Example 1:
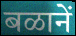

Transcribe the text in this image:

बळानें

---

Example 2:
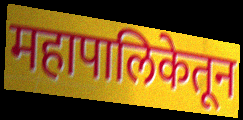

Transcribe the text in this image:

महापालिकेतून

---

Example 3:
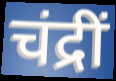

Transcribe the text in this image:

चंद्रीं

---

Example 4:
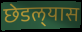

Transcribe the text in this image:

छेडल्यास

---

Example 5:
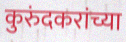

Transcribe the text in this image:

कुरुंदकरांच्या